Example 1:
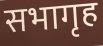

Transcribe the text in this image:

सभागृह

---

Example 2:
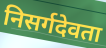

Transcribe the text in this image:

निसर्गदेवता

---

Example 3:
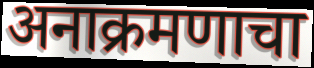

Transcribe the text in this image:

अनाक्रमणाचा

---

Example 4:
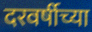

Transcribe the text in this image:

दरवर्षीच्या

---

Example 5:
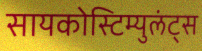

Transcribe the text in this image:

सायकोस्टिम्युलंट्स